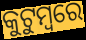
କୁଟୁମ୍ଵରେ